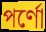
পর্ণো